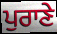
ਪੁਰਾਣੇ